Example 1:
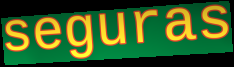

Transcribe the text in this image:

seguras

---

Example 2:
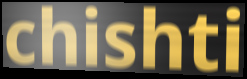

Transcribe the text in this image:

chishti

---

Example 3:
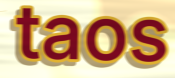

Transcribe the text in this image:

taos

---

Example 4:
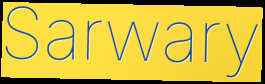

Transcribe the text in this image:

Sarwary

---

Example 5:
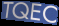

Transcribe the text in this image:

TQEC